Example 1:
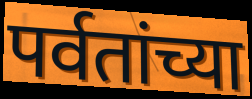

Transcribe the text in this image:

पर्वतांच्या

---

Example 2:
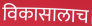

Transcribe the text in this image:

विकासालाच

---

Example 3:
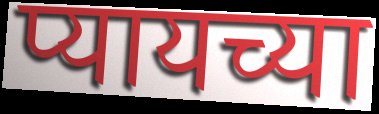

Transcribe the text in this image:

प्यायच्या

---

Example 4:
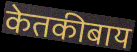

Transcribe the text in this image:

केतकीबाय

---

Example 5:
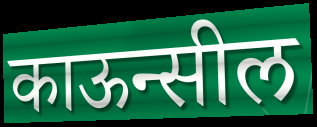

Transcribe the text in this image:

काऊन्सील